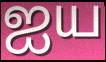
ஐய